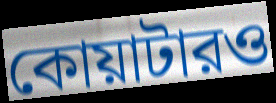
কোয়াটারও